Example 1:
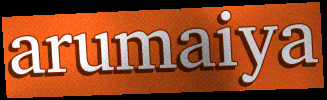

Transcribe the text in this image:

arumaiya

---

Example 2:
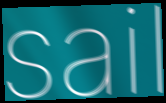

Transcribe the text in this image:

sail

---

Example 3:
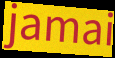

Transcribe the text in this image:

jamai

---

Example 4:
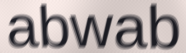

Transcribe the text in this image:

abwab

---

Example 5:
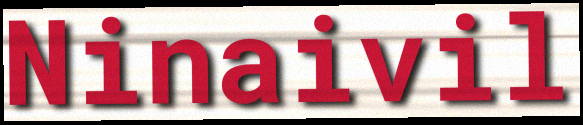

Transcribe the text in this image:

Ninaivil